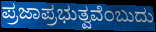
ಪ್ರಜಾಪ್ರಭುತ್ವವೆಂಬುದು